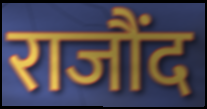
राजौंद